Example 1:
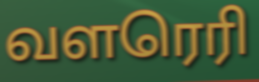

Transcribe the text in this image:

வளரெரி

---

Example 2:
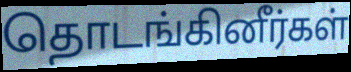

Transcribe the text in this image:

தொடங்கினீர்கள்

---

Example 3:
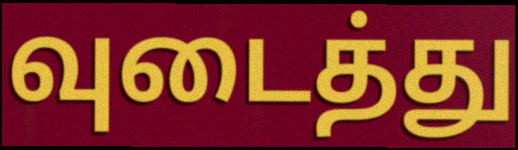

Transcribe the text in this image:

வுடைத்து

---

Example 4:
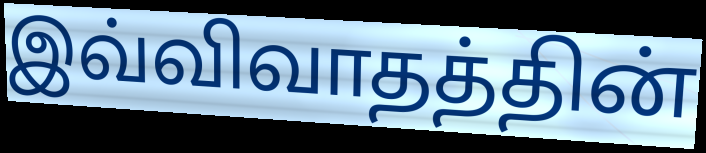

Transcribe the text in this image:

இவ்விவாதத்தின்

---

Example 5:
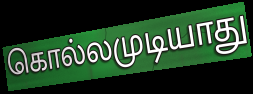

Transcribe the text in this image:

கொல்லமுடியாது